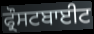
ਫ੍ਰੌਸਟਬਾਈਟ